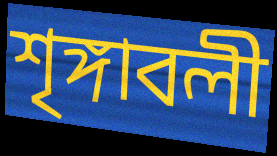
শৃঙ্গাবলী